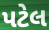
પટેલ